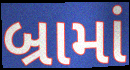
બ્રામાં